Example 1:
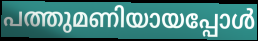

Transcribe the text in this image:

പത്തുമണിയായപ്പോൾ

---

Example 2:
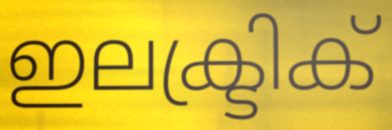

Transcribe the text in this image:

ഇലക്ട്രിക്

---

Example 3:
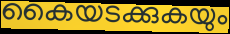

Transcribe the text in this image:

കൈയടക്കുകയും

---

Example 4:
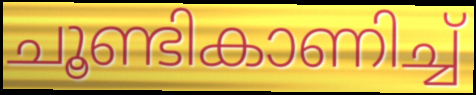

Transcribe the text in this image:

ചൂണ്ടികാണിച്ച്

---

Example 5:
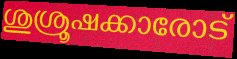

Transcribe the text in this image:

ശുശ്രൂഷക്കാരോട്